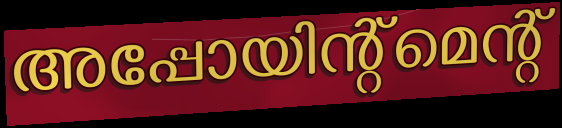
അപ്പോയിന്റ്മെന്റ്